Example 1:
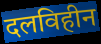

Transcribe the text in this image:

दलविहीन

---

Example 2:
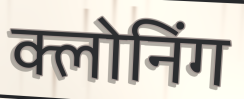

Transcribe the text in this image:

क्लोनिंग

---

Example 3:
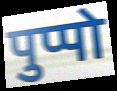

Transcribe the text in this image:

पुप्पो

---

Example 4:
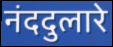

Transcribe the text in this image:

नंददुलारे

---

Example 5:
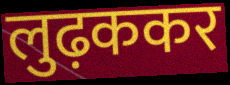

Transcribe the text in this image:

लुढ़ककर